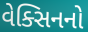
વેક્સિનનો